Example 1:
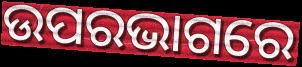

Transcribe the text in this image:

ଉପରଭାଗରେ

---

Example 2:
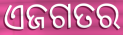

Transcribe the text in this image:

ଏଜଗତର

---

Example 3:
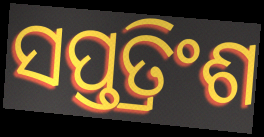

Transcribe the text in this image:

ସପ୍ତତ୍ରିଂଶ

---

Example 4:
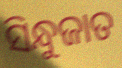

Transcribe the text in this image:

ସିନ୍ଧୁଜାତ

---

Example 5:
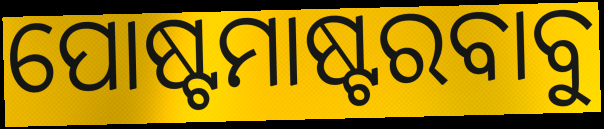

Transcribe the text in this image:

ପୋଷ୍ଟମାଷ୍ଟରବାବୁ